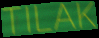
TILAK